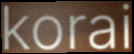
korai